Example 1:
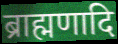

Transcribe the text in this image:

ब्राह्मणादि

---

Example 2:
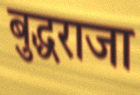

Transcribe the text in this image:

बुद्धराजा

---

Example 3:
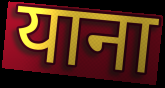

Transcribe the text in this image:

याना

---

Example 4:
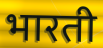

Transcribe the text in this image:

भारती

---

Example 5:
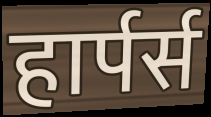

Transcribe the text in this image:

हार्पर्स